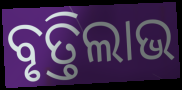
ବୃତ୍ତିଲାଭ